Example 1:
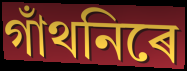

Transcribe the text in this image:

গাঁথনিৰে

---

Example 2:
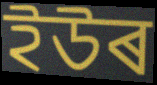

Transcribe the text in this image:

ইউৰ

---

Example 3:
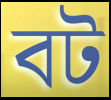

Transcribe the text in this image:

বট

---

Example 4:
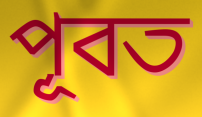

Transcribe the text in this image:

পূবত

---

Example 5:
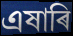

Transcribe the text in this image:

এষাৰি